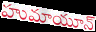
హుమాయూన్